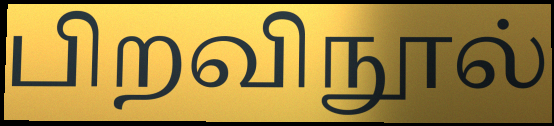
பிறவிநூல்